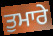
ਤੁਮਾਰੇ